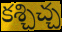
కశ్చిచ్చ